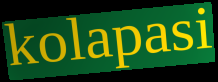
kolapasi